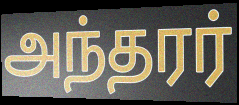
அந்தரர்